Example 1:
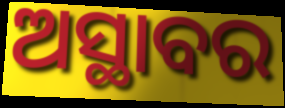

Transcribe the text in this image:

ଅସ୍ଥାବର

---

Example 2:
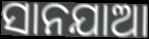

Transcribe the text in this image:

ସାନଯାଆ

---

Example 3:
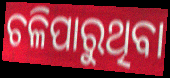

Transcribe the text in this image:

ଚଳିପାରୁଥିବା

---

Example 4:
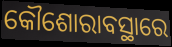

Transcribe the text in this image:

କୌଶୋରାବସ୍ଥାରେ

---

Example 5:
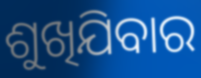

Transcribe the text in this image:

ଶୁଖିଯିବାର